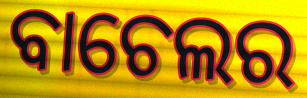
ବାଚେଲର